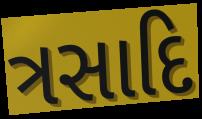
ત્રસાદિ